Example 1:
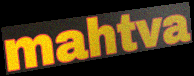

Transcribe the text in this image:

mahtva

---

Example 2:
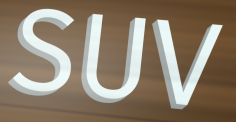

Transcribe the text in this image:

SUV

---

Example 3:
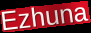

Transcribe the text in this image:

Ezhuna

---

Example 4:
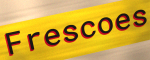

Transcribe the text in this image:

Frescoes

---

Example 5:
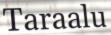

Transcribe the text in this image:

Taraalu